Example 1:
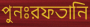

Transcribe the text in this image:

পুনঃরফতানি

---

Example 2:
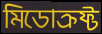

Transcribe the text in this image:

মিডোক্রফ্ট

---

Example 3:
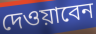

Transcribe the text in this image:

দেওয়াবেন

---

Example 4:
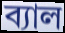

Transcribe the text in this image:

ব্যাল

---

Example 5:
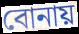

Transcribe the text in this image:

বোনায়